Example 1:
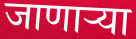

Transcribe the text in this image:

जाणाऱ्या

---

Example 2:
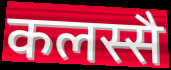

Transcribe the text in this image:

कलस्सै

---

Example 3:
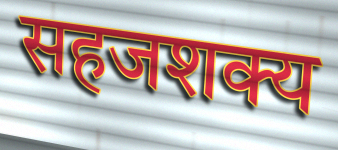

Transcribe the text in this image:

सहजशक्य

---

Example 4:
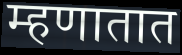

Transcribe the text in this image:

म्हणातात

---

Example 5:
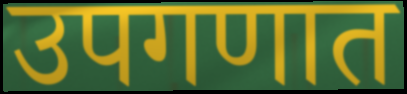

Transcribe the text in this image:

उपगणात